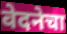
वेदनेचा